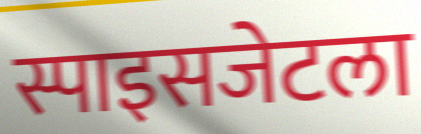
स्पाइसजेटला